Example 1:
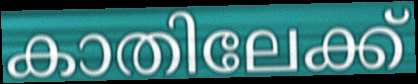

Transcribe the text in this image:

കാതിലേക്ക്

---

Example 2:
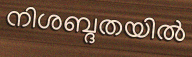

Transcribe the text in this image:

നിശബ്ദതയിൽ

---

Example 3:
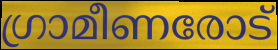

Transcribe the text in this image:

ഗ്രാമീണരോട്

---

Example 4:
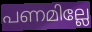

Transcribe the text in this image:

പണമില്ലേ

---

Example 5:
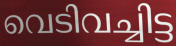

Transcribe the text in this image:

വെടിവച്ചിട്ട